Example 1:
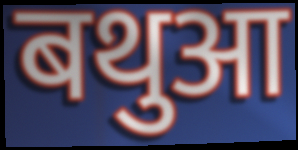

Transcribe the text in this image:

बथुआ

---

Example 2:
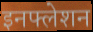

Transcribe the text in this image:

इनफ्लेशन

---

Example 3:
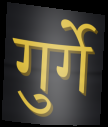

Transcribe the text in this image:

गुर्गे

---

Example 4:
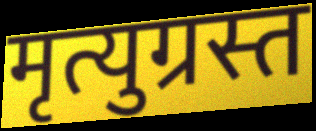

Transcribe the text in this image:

मृत्युग्रस्त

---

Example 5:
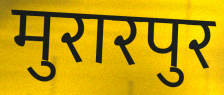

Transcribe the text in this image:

मुरारपुर